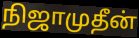
நிஜாமுதீன்